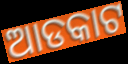
ଆଡକାଟ